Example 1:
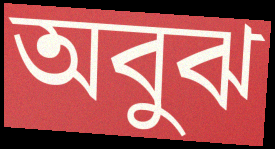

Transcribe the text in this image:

অবুঝ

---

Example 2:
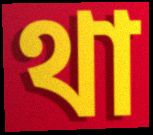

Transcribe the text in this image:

থা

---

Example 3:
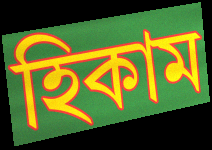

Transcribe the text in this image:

হিকাম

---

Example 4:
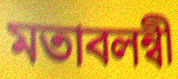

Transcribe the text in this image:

মতাবলন্বী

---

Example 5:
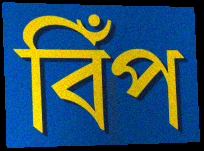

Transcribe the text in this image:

বিঁপ